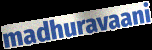
madhuravaani